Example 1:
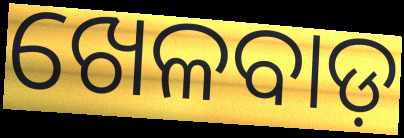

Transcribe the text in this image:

ଖେଳବାଡ଼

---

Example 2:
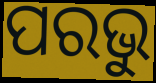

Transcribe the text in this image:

ପରଭୁ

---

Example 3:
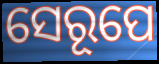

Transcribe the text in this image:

ସେରୂପେ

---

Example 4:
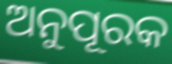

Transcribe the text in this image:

ଅନୁପୂରକ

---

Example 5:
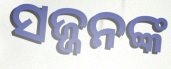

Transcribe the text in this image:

ସଜ୍ଜନଙ୍କ